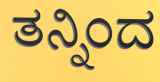
ತನ್ನಿಂದ